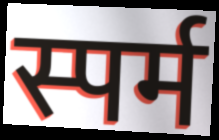
स्पर्म